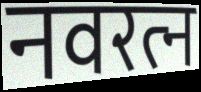
नवरत्‍न